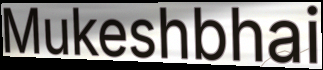
Mukeshbhai